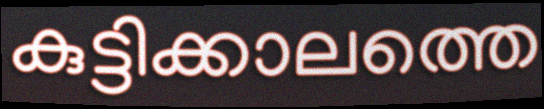
കുട്ടിക്കാലത്തെ